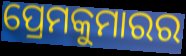
ପ୍ରେମକୁମାରର